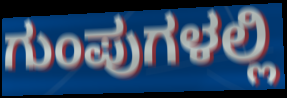
ಗುಂಪುಗಳಲ್ಲಿ